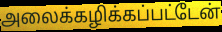
அலைக்கழிக்கப்பட்டேன்